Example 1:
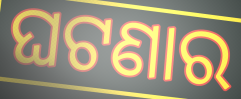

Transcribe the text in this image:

ଘଟଣାର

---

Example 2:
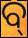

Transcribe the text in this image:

ବ୍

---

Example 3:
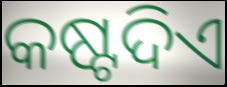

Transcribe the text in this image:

କଷ୍ଟଦିଏ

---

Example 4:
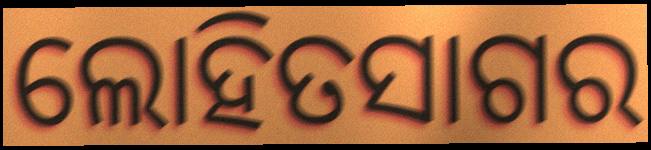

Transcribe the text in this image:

ଲୋହିତସାଗର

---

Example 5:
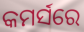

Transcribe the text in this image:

କମର୍ସରେ